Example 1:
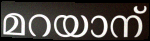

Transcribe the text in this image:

മറയാന്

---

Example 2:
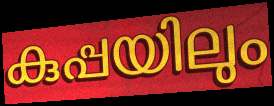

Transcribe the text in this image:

കുപ്പയിലും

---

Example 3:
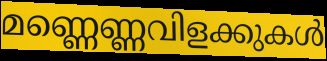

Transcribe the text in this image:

മണ്ണെണ്ണവിളക്കുകൾ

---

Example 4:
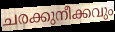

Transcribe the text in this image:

ചരക്കുനീക്കവും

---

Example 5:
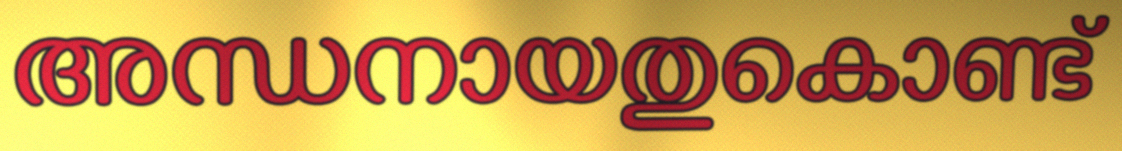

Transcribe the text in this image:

അന്ധനായതുകൊണ്ട്